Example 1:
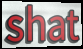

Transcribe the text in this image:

shat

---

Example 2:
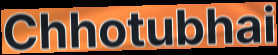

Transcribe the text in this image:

Chhotubhai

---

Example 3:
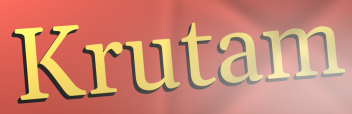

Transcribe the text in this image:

Krutam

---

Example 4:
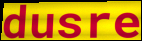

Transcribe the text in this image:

dusre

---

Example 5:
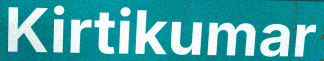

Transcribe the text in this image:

Kirtikumar